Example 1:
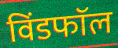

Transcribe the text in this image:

विंडफॉल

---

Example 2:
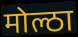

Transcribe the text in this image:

मोल्ठा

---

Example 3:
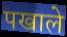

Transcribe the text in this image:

पखाले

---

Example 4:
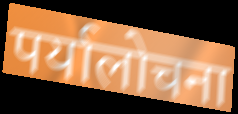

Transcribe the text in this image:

पर्यालोचना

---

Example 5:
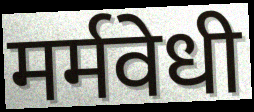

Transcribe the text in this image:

मर्मवेधी